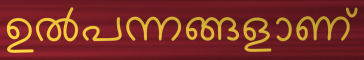
ഉൽപന്നങ്ങളാണ്